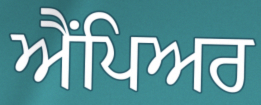
ਐਂਪਿਅਰ